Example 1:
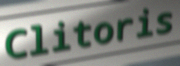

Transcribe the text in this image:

Clitoris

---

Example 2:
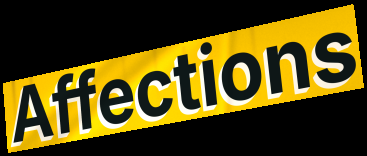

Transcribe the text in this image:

Affections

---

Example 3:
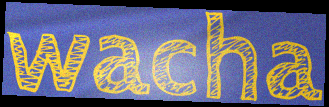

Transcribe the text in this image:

wacha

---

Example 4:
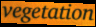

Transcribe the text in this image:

vegetation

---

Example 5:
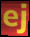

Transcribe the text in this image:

ej